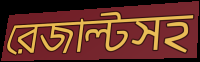
রেজাল্টসহ